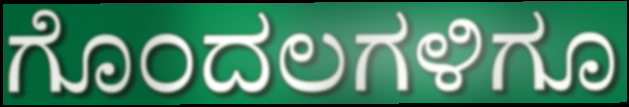
ಗೊಂದಲಗಳಿಗೂ